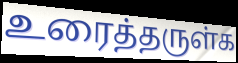
உரைத்தருள்க